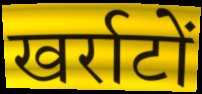
खर्राटों